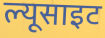
ल्यूसाइट